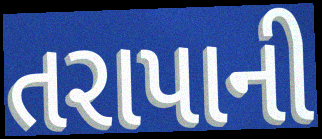
તરાપાની